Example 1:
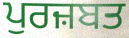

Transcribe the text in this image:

ਪੁਰਜ਼ਬਤ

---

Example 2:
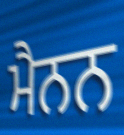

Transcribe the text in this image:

ਮੈਨਨ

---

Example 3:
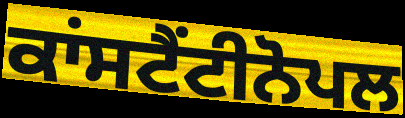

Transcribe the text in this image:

ਕਾਂਸਟੈਂਟੀਨੋਪਲ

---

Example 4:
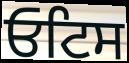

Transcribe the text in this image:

ਓਟਿਸ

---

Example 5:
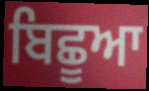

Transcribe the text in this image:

ਬਿਛੂਆ